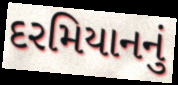
દરમિયાનનું